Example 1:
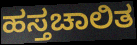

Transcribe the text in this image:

ಹಸ್ತಚಾಲಿತ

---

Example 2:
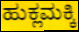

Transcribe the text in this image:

ಹುಕ್ಲಮಕ್ಕಿ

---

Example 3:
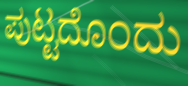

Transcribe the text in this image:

ಪುಟ್ಟದೊಂದು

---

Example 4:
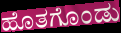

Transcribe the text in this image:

ಹೊತಗೊಂಡು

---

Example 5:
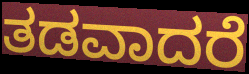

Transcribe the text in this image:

ತಡವಾದರೆ